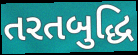
તરતબુદ્ધિ